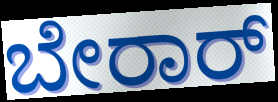
ಬೇರಾರ್